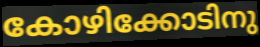
കോഴിക്കോടിനു